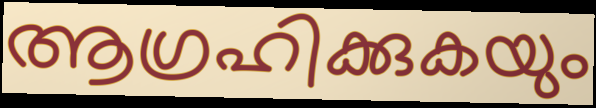
ആഗ്രഹിക്കുകയും